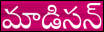
మాడిసన్